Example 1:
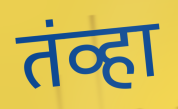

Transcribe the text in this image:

तंव्हा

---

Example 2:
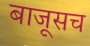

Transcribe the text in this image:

बाजूसच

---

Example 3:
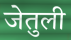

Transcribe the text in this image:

जेतुली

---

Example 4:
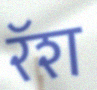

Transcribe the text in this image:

रॅश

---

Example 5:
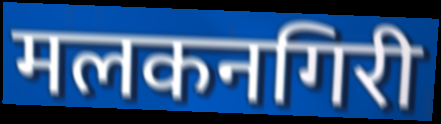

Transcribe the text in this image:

मलकनगिरी